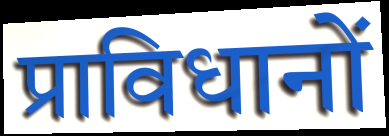
प्राविधानों